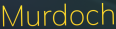
Murdoch